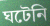
ঘটেনি